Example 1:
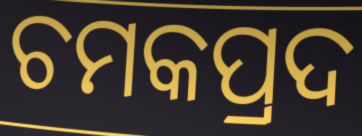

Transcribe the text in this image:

ଚମକପ୍ରଦ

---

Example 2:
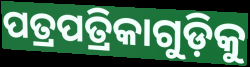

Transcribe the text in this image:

ପତ୍ରପତ୍ରିକାଗୁଡ଼ିକୁ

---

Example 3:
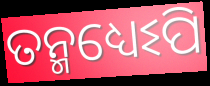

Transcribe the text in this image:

ତନ୍ମଧ୍ୟେଽପି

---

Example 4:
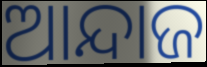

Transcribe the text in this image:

ଆନ୍ଦାଜ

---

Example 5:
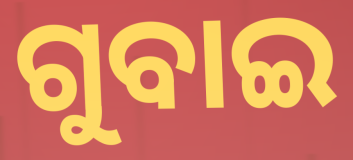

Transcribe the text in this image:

ଗୁବାଇ